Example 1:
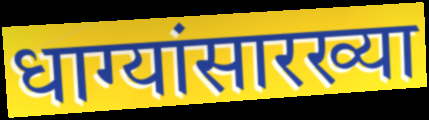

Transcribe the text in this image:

धाग्यांसारख्या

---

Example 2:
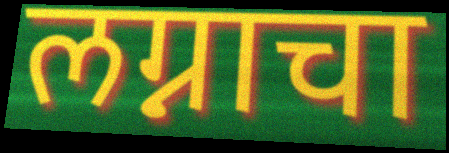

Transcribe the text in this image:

लग्नाचा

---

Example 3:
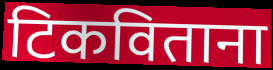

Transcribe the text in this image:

टिकविताना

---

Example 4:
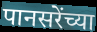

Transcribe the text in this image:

पानसरेंच्या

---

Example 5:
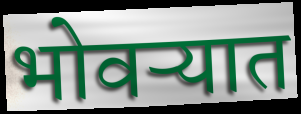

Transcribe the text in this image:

भोवऱ्यात